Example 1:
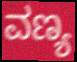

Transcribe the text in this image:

ವಣ್ಯ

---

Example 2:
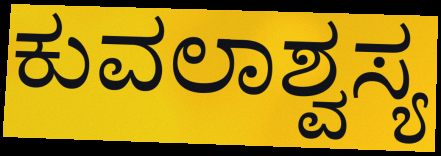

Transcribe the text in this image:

ಕುವಲಾಶ್ವಸ್ಯ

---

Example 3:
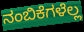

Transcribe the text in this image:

ನಂಬಿಕೆಗಳೆಲ್ಲ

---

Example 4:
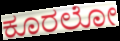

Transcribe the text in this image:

ಕೂರಲೋ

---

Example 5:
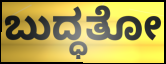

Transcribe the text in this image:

ಬುದ್ಧತೋ